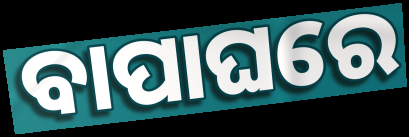
ବାପାଘରେ